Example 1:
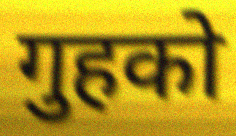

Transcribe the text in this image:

गुहको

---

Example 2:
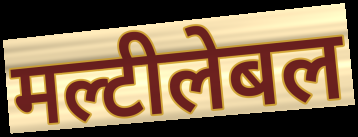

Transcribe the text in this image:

मल्टीलेबल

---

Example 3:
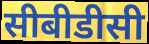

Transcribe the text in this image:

सीबीडीसी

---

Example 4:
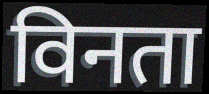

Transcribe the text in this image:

विनता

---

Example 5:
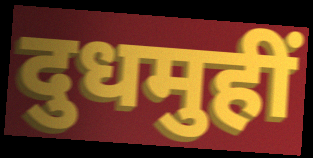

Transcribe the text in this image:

दुधमुहीं